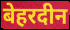
बेहरदीन